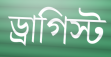
ড্রাগিস্ট